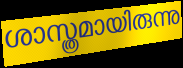
ശാസ്ത്രമായിരുന്നു